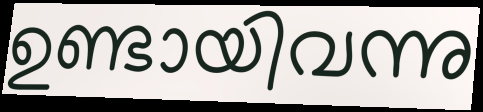
ഉണ്ടായിവന്നു